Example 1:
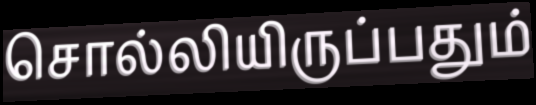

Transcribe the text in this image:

சொல்லியிருப்பதும்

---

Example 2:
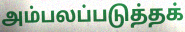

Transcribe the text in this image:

அம்பலப்படுத்தக்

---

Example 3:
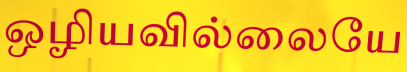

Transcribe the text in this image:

ஒழியவில்லையே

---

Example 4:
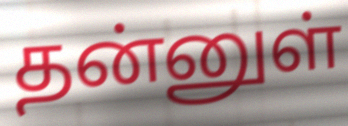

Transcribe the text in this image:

தன்னுள்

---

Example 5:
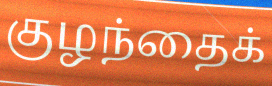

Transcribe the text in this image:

குழந்தைக்